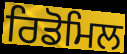
ਰਿਡੋਮਿਲ